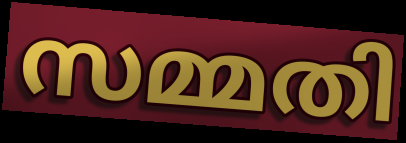
സമ്മതി